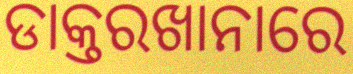
ଡାକ୍ତରଖାନାରେ